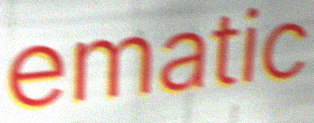
ematic